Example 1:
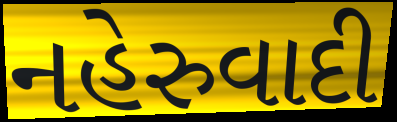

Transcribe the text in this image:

નહેરુવાદી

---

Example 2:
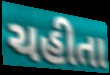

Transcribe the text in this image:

ચહીતા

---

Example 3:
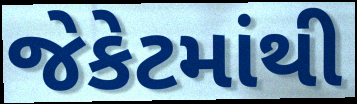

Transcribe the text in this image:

જેકેટમાંથી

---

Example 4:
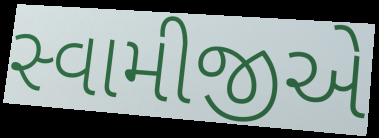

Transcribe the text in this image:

સ્વામીજીએ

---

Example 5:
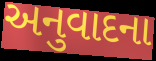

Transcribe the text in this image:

અનુવાદના